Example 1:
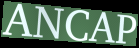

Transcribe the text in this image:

ANCAP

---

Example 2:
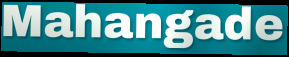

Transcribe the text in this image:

Mahangade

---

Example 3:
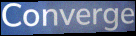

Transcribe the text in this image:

Converge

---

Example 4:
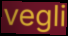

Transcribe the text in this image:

vegli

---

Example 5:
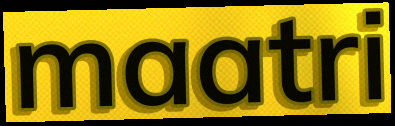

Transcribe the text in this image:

maatri